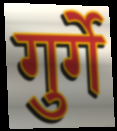
गुर्गे